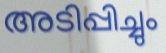
അടിപ്പിച്ചും